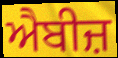
ਐਬੀਜ਼